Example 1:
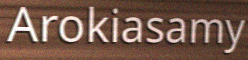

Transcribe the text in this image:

Arokiasamy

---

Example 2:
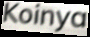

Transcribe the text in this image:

Koinya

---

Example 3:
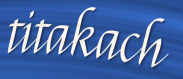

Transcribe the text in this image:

titakach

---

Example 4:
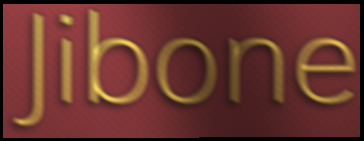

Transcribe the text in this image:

Jibone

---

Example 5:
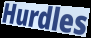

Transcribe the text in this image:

Hurdles